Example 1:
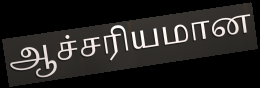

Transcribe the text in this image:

ஆச்சரியமான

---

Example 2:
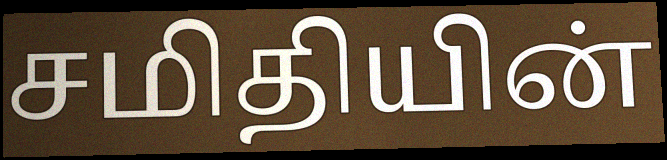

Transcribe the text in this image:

சமிதியின்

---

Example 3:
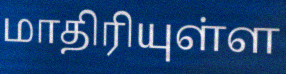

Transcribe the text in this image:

மாதிரியுள்ள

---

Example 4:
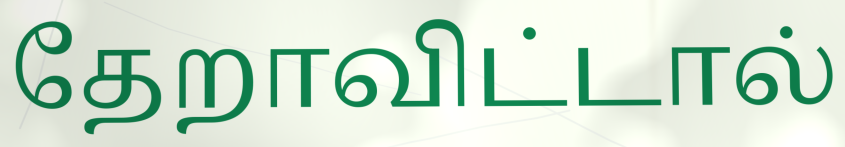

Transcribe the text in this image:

தேறாவிட்டால்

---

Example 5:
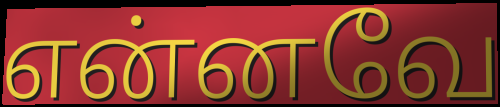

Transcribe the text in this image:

என்னவே